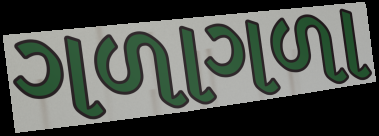
ગળાગળા